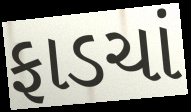
ફાડચાં